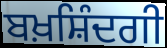
ਬਖ਼ਸ਼ਿੰਦਗੀ